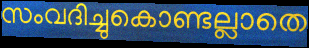
സംവദിച്ചുകൊണ്ടല്ലാതെ